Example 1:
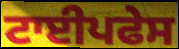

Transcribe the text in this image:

ਟਾਈਪਫੇਸ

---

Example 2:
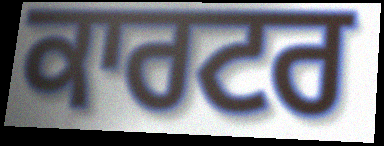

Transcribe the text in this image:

ਕਾਰਟਰ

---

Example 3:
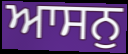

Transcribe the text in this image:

ਆਸਨੁ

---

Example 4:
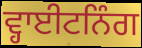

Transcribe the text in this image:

ਵ੍ਹਾਈਟਨਿੰਗ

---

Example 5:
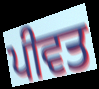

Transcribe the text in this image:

ਪੀਵਤ